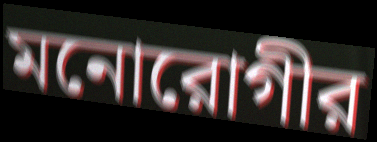
মনোরোগীর